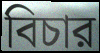
বিচার